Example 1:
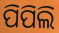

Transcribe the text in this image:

ପିପିଲି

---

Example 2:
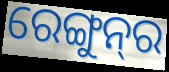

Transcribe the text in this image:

ରେଙ୍ଗୁନ୍‌ର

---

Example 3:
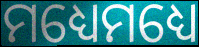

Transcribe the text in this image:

ମଧ୍ୟେମଧ୍ୟେ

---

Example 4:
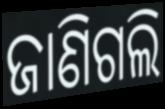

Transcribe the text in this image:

ଜାଣିଗଲି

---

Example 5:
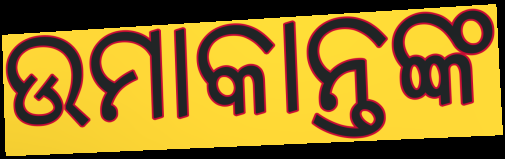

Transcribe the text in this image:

ଉମାକାନ୍ତଙ୍କ